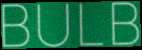
BULB